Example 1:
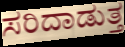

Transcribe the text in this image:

ಸರಿದಾಡುತ್ತ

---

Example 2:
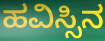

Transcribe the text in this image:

ಹವಿಸ್ಸಿನ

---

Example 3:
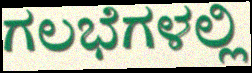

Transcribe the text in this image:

ಗಲಭೆಗಳಲ್ಲಿ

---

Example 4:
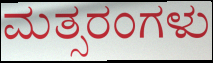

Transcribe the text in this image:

ಮತ್ಸರಂಗಳು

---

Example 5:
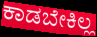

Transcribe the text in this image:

ಕಾಡಬೇಕಿಲ್ಲ